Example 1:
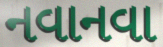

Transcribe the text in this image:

નવાનવા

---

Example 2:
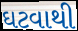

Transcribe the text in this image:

ઘટવાથી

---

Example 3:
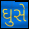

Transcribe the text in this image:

ઘુસે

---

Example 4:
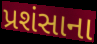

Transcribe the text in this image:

પ્રશંસાના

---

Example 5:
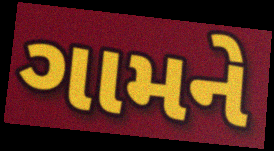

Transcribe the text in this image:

ગામને